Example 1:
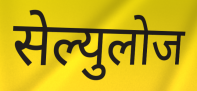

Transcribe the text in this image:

सेल्युलोज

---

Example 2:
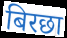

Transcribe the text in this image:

बिरछा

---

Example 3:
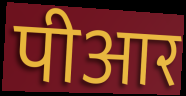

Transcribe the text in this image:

पीआर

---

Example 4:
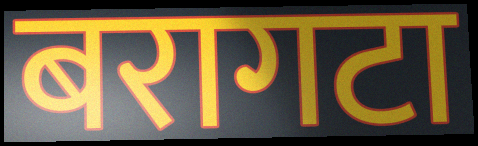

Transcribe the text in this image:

बरागटा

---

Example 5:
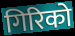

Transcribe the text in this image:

गिरिको